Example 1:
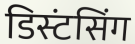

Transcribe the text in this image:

डिस्टंसिंग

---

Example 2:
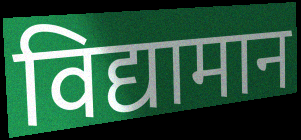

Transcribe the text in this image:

विद्यामान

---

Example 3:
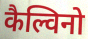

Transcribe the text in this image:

कैल्विनो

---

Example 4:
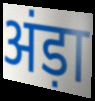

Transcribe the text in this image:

अंड़ा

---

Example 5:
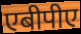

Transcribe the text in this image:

एबीपीए